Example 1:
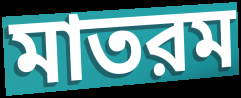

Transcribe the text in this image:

মাতরম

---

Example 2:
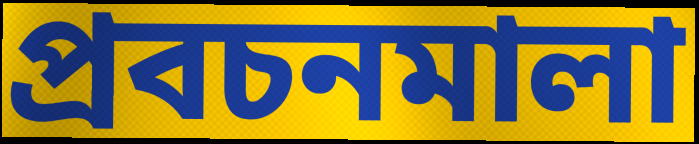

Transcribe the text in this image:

প্রবচনমালা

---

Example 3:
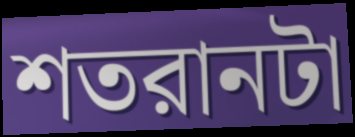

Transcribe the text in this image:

শতরানটা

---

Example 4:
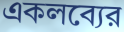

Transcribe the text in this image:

একলব্যের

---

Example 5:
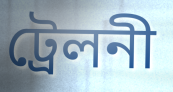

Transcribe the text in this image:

ট্রেলনী